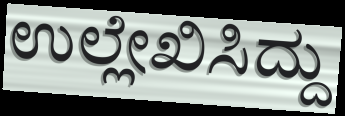
ಉಲ್ಲೇಖಿಸಿದ್ದು